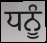
ਧਨੂੰ